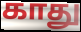
காது